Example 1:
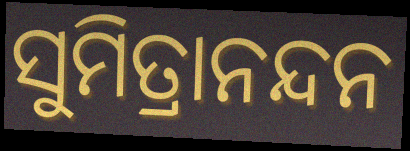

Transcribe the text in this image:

ସୁମିତ୍ରାନନ୍ଦନ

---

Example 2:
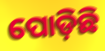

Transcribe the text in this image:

ପୋଡ଼ିଛି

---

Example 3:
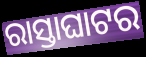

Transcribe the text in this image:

ରାସ୍ତାଘାଟର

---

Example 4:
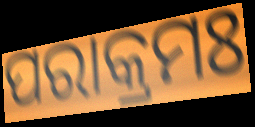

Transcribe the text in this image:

ପରାକ୍ରମଃ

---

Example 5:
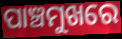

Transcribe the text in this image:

ପାଞ୍ଚମୁଖରେ